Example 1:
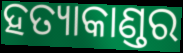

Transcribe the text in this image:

ହତ୍ୟାକାଣ୍ଡର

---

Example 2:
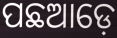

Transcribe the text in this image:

ପଛଆଡ଼େ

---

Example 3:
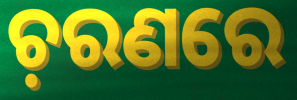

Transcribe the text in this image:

ଚ଼ରଣରେ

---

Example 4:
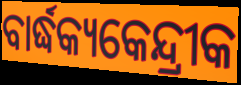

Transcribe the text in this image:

ବାର୍ଦ୍ଧକ୍ୟକେନ୍ଦ୍ରୀକ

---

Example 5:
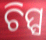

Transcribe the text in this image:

ଚିପ୍ସ